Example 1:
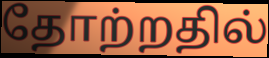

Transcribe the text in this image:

தோற்றதில்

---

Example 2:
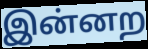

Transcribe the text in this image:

இன்னற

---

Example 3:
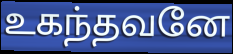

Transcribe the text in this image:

உகந்தவனே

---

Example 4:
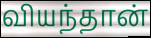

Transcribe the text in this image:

வியந்தான்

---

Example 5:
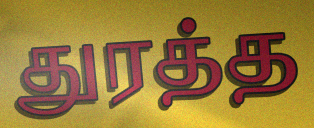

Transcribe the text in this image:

துரத்த